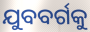
ଯୁବବର୍ଗକୁ